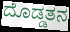
ದೊಡ್ಡತನ